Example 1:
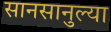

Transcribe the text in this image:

सानसानुल्या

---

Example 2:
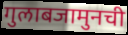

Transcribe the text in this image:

गुलाबजामुनची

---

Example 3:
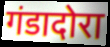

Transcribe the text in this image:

गंडादोरा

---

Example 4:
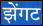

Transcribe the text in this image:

झेंगट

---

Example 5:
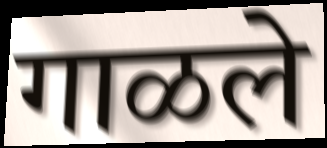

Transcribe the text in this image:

गाळले